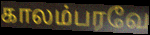
காலம்பரவே